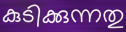
കുടിക്കുന്നതു